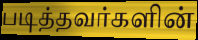
படித்தவர்களின்